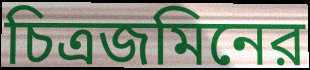
চিত্রজমিনের